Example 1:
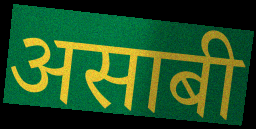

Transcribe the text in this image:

असाबी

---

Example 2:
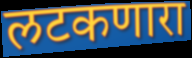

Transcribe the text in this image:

लटकणारा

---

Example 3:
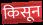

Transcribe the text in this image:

किसून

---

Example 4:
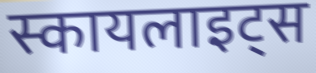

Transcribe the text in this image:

स्कायलाइट्स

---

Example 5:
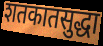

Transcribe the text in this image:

शतकातसुद्धा